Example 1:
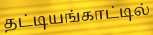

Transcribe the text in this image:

தட்டியங்காட்டில்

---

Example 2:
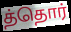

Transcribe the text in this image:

த்தொர்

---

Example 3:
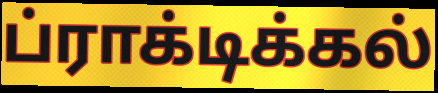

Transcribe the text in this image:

ப்ராக்டிக்கல்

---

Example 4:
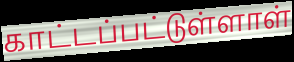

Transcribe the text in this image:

காட்டப்பட்டுள்ளாள்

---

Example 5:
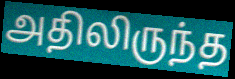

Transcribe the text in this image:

அதிலிருந்த